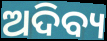
ଅଦିବ୍ୟ